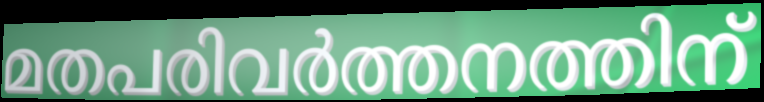
മതപരിവർത്തനത്തിന്